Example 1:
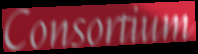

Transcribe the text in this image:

Consortium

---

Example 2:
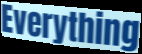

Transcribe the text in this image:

Everything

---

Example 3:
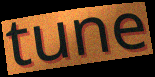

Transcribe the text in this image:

tune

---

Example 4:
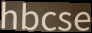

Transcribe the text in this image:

hbcse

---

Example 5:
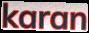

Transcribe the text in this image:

karan